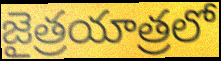
జైత్రయాత్రలో